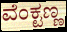
ವೆಂಕ್ಟಣ್ಣ